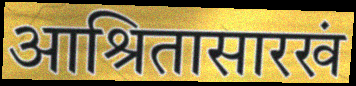
आश्रितासारखं